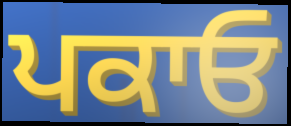
ਪਕਾਓ